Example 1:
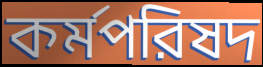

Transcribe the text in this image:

কর্মপরিষদ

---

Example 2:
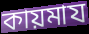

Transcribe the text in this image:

কায়মায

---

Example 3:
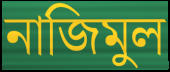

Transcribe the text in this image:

নাজিমুল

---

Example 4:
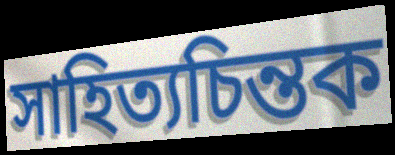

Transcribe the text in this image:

সাহিত্যচিন্তক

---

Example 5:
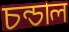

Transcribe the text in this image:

চন্ডাল